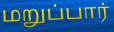
மறுப்பார்